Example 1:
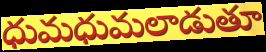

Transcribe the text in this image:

ధుమధుమలాడుతూ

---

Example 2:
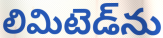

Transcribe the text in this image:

లిమిటెడ్‌ను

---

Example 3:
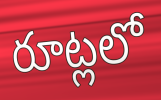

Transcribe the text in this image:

రూట్లలో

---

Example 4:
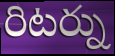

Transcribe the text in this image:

రిటర్ను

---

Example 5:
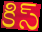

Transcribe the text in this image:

కిస్